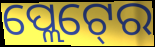
ପ୍ଲେଟ୍‍ରେ